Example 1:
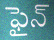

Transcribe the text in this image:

ఫైన్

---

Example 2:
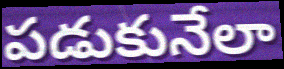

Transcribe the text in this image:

పడుకునేలా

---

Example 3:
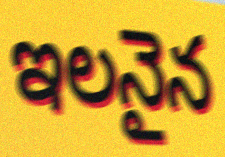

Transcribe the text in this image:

ఇలనైన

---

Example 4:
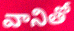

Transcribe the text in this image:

వానితో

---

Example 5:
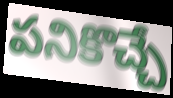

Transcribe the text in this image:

పనికొచ్చే